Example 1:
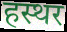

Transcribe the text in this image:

हस्थर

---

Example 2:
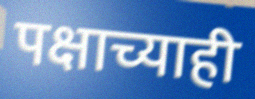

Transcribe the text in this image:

पक्षाच्याही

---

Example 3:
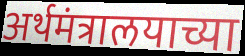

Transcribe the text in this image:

अर्थमंत्रालयाच्या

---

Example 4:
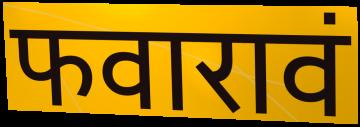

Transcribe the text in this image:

फवारावं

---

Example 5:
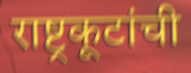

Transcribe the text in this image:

राष्ट्रकूटांची